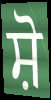
ਸ਼ੋ